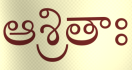
ఆశ్రితాః